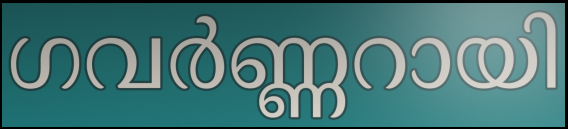
ഗവർണ്ണറായി